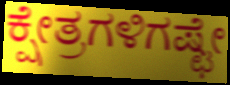
ಕ್ಷೇತ್ರಗಳಿಗಷ್ಟೇ